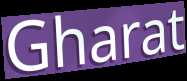
Gharat